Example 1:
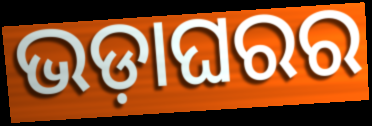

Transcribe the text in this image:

ଭଡ଼ାଘରର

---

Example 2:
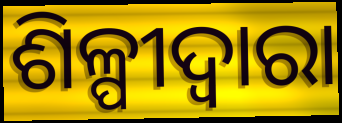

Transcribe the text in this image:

ଶିଳ୍ପୀଦ୍ୱାରା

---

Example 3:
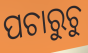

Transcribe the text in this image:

ପଚାରୁଚୁ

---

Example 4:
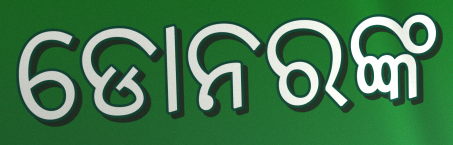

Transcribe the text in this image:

ଡୋନରଙ୍କ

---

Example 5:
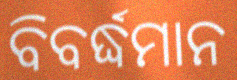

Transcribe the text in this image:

ବିବର୍ଦ୍ଧମାନ